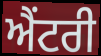
ਐਂਟਰੀ